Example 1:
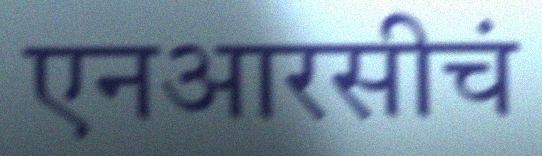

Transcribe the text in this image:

एनआरसीचं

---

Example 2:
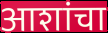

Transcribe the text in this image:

आशांचा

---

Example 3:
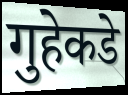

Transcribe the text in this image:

गुहेकडे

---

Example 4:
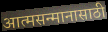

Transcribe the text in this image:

आत्मसन्मानासाठी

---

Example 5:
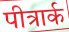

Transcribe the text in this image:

पीत्रार्क